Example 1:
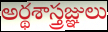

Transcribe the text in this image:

అర్థశాస్త్రజ్ఞులు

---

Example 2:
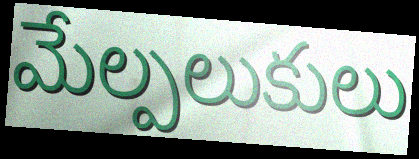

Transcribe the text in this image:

మేల్పలుకులు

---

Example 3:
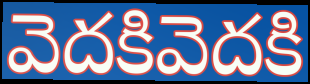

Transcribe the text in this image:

వెదకివెదకి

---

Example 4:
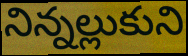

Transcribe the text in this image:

నిన్నల్లుకుని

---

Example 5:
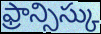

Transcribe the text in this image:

ఫ్రాన్సిస్కు